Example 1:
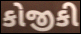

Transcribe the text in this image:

કોજીકી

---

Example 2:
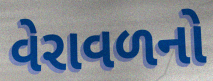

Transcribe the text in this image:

વેરાવળનો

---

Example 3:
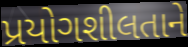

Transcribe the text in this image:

પ્રયોગશીલતાને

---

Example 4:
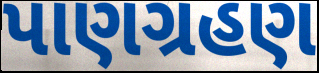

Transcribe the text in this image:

પાણગ્રહણ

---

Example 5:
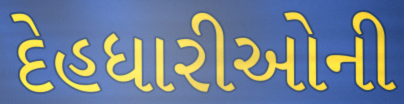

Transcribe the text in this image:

દેહધારીઓની